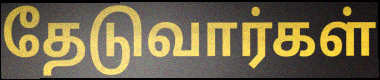
தேடுவார்கள்